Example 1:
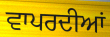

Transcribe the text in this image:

ਵਾਪਰਦੀਆਂ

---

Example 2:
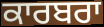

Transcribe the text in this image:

ਕਾਰਬਰਾ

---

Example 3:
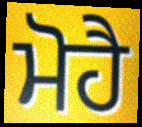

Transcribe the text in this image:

ਮੋਹੈ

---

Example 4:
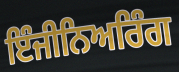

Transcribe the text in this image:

ਇੰਜੀਨਿਅਰਿੰਗ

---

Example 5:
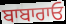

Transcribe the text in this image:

ਬਾਬਾਰਾਓ